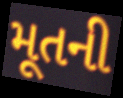
મૂતની